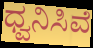
ಧ್ವನಿಸಿವೆ